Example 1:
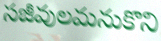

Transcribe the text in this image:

సజీవులమనుకొని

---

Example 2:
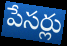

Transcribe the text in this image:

పేసర్లు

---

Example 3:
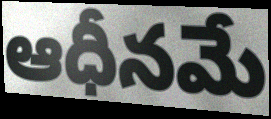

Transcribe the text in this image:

ఆధీనమే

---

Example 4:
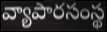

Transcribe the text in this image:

వ్యాపారసంస్థ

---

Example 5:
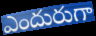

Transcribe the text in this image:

ఎందురుగా